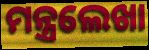
ମନ୍ତ୍ରଲେଖା